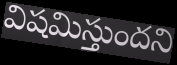
విషమిస్తుందని